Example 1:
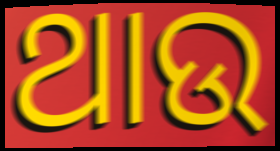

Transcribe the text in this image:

ଥାଉ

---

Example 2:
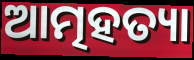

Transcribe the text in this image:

ଆତ୍ମହତ୍ୟା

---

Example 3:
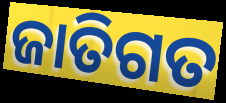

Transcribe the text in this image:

ଜାତିଗତ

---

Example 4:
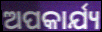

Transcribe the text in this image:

ଅପକାର୍ଯ୍ୟ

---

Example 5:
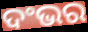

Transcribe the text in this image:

ଦଂଭର